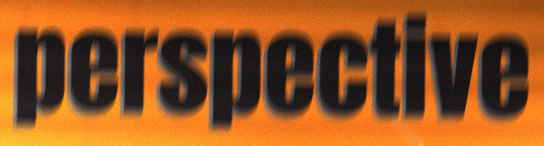
perspective